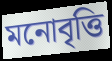
মনোবৃত্তি